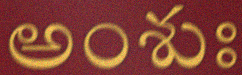
అంశుః